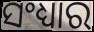
ସଂଧ୍ୟାର